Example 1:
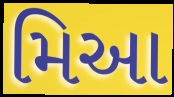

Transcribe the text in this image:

મિઆ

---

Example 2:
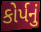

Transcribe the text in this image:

કોર્પનું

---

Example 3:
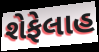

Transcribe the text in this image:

શેફેલાહ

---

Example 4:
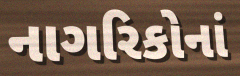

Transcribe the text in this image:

નાગરિકોનાં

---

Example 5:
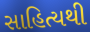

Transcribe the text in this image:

સાહિત્યથી